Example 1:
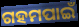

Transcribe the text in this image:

ଗହମପାଇଁ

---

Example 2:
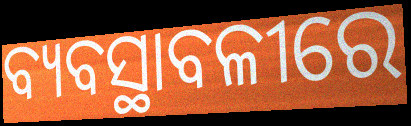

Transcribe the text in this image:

ବ୍ୟବସ୍ଥାବଳୀରେ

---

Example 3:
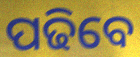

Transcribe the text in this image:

ପଢିବେ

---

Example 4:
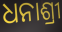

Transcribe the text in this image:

ଧନାଶ୍ରୀ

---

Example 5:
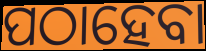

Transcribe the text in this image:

ପଠାହେବା